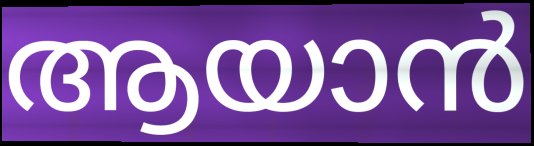
ആയാൻ